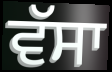
ਵੱਸਾ